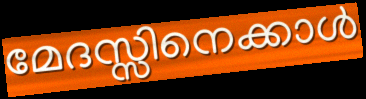
മേദസ്സിനെക്കാൾ